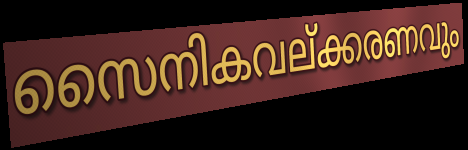
സൈനികവല്ക്കരണവും